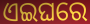
ଏଇଘରେ